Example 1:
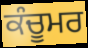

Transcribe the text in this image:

ਕੰਚੂਮਰ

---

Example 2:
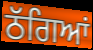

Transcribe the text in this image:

ਠੱਗਿਆਂ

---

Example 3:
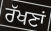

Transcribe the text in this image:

ਰੱਖਣਾਂ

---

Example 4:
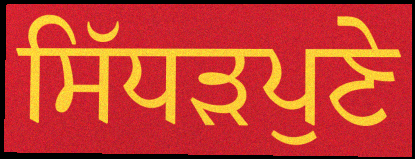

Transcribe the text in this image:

ਸਿੱਧੜਪੁਣੇ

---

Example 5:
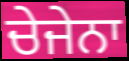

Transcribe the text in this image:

ਚੇਜੇਨਾ